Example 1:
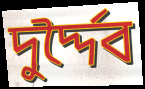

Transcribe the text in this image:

দুর্দ্দৈব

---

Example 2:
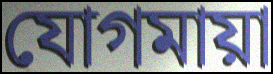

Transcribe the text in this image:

যোগমায়া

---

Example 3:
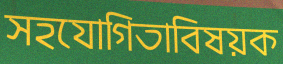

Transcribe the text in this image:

সহযোগিতাবিষয়ক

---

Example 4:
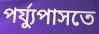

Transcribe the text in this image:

পর্য্যুপাসতে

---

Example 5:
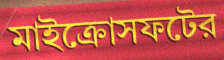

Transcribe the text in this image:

মাইক্রোসফটের